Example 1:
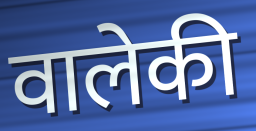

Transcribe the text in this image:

वालेकी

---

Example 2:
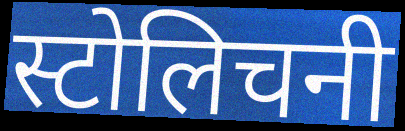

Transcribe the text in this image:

स्टोलिचनी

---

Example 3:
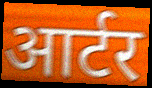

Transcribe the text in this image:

आर्टर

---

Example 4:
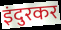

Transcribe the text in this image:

इंदुरकर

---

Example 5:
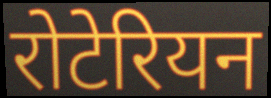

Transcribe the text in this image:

रोटेरियन